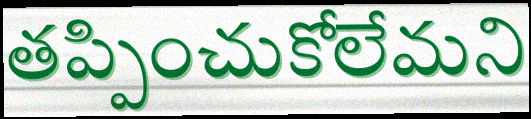
తప్పించుకోలేమని